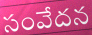
సంవేదన